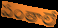
పంతాలే